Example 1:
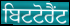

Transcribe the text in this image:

ਬਿਟਟੋਰੈਂਟ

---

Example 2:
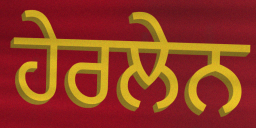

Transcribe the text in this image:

ਹੇਰਲੇਨ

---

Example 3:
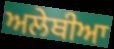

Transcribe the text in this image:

ਅਲੇਥੀਆ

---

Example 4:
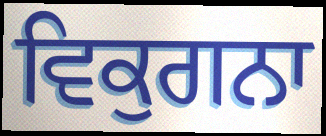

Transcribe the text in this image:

ਵਿਕੁਗਨਾ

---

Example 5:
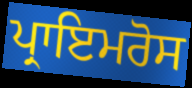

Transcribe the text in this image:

ਪ੍ਰਾਇਮਰੋਸ